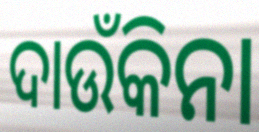
ଦାଉଁକିନା